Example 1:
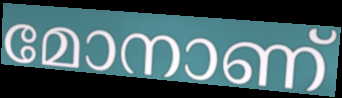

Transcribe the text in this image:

മോനാണ്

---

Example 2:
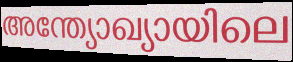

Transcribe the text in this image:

അന്ത്യോഖ്യായിലെ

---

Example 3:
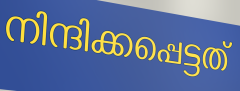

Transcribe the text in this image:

നിന്ദിക്കപ്പെട്ടത്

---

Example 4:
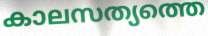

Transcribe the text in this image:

കാലസത്യത്തെ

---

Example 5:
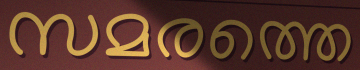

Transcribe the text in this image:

സമരത്തെ